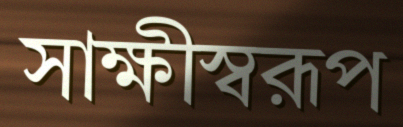
সাক্ষীস্বরূপ